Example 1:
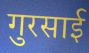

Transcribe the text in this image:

गुरसाई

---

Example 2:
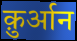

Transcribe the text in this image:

क़ुर्आन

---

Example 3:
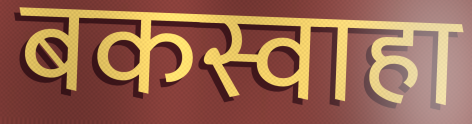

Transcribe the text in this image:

बकस्वाहा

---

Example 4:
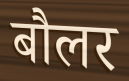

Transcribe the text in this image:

बौलर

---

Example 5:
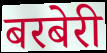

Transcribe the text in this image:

बरबेरी